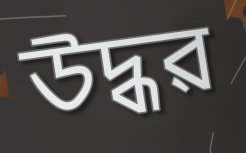
উদ্ধৱ